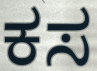
ಕಸ